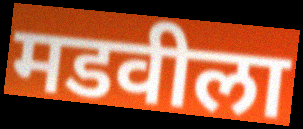
मडवीला